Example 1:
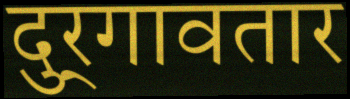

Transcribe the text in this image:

दुर्गावतार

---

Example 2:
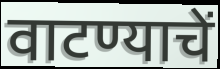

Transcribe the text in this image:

वाटण्याचें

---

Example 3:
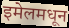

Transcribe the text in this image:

इमेलमधून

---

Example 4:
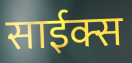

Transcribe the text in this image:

साईक्स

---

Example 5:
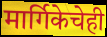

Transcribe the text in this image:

मार्गिकेचेही